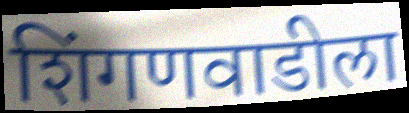
शिंगणवाडीला